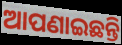
ଆପଣାଇଛନ୍ତି